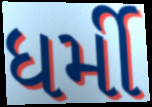
ધર્મી